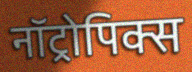
नॉट्रोपिक्स